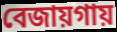
বেজায়গায়